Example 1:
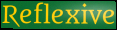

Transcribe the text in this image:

Reflexive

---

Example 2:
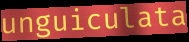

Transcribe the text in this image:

unguiculata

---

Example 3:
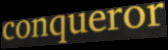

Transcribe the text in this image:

conqueror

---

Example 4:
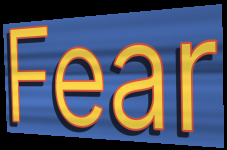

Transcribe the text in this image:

Fear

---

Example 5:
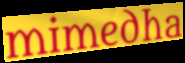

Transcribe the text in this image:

mimedha